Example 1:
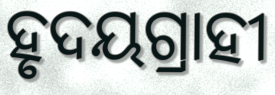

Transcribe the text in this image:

ହୃଦୟଗ୍ରାହୀ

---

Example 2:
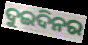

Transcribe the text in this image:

ଦୁଇଦିନର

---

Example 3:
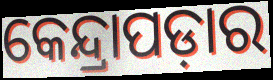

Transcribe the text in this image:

କେନ୍ଦ୍ରାପଡ଼ାର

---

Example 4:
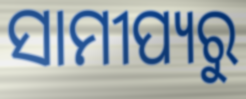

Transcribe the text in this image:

ସାମୀପ୍ୟରୁ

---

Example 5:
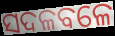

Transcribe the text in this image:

ସଦଳବଳେ